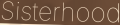
Sisterhood